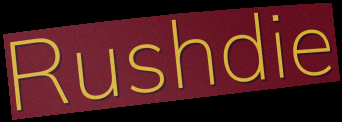
Rushdie